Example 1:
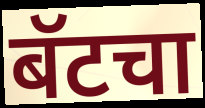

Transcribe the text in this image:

बॅटचा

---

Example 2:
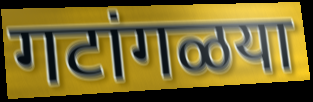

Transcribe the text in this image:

गटांगळया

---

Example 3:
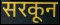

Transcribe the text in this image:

सरकून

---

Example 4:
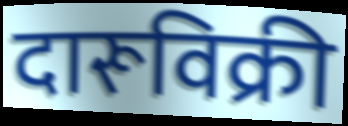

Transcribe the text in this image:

दारूविक्री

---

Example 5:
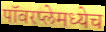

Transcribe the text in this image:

पॉवरप्लेमध्येच